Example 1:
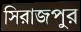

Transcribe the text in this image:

সিরাজপুর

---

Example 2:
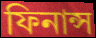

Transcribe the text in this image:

ফিনান্স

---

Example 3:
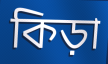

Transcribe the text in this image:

কিড়া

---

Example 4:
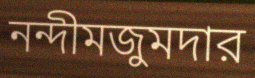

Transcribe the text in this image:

নন্দীমজুমদার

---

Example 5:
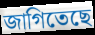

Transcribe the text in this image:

জাগিতেছে